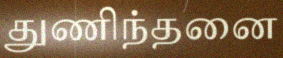
துணிந்தனை